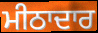
ਮੀਠਾਦਾਰ